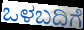
ಒಳಬದಿಗೆ